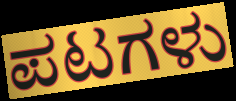
ಪಟಗಳು